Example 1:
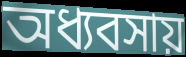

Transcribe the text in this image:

অধ্যবসায়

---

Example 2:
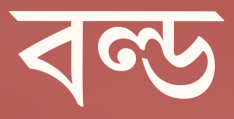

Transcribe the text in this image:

বল্ড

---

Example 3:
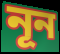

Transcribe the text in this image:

নূন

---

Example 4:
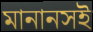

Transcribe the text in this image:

মানানসই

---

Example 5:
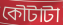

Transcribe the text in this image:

কৌটাটা